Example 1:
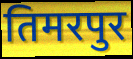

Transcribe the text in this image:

तिमरपुर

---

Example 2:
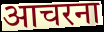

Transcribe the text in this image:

आचरना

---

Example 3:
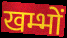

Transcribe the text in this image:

खम्भों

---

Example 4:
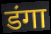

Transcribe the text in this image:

डंगा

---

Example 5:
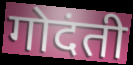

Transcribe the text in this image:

गोदंती